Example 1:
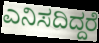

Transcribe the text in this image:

ಎನಿಸದಿದ್ದರೆ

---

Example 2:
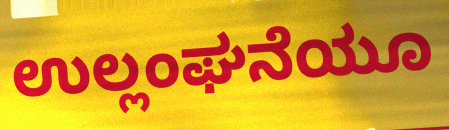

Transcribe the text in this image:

ಉಲ್ಲಂಘನೆಯೂ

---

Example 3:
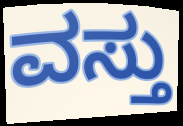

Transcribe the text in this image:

ವಸ್ತು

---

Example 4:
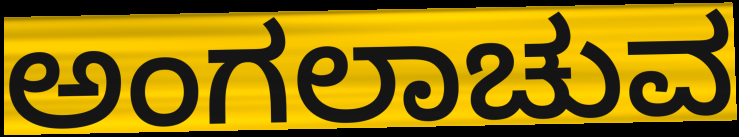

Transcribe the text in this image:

ಅಂಗಲಾಚುವ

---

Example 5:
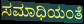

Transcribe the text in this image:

ಸಮಾಧಿಯಂತೆ